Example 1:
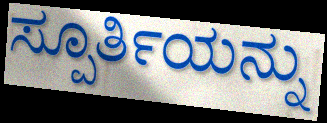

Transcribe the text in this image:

ಸ್ಪೂರ್ತಿಯನ್ನು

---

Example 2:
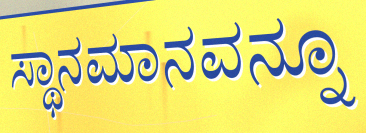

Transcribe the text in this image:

ಸ್ಥಾನಮಾನವನ್ನೂ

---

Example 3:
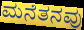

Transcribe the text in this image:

ಮನೆತನವು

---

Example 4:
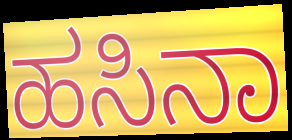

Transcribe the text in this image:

ಹಸಿನಾ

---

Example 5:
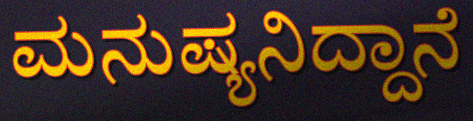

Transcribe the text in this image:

ಮನುಷ್ಯನಿದ್ದಾನೆ